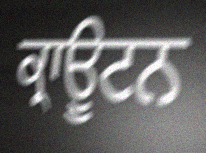
ਕ੍ਰਾਊਟਨ